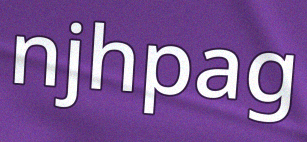
njhpag